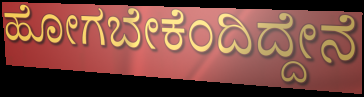
ಹೋಗಬೇಕೆಂದಿದ್ದೇನೆ